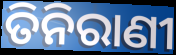
ତିନିରାଣୀ